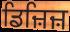
ਡਿਜ਼ਿਜ਼